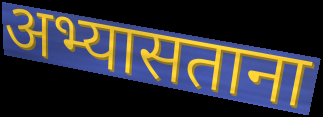
अभ्यासताना